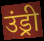
उंड्री